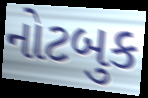
નોટબુક